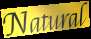
Natural